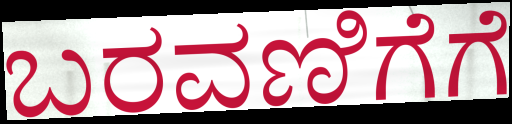
ಬರವಣಿಗೆಗೆ